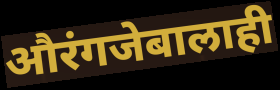
औरंगजेबालाही